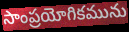
సాంప్రయోగికమును